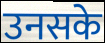
उनसके